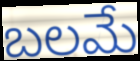
బలమే